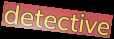
detective